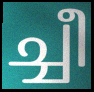
ച്ചീ